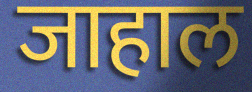
जाहाल